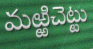
మఱ్ఱిచెట్టు